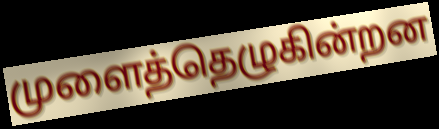
முளைத்தெழுகின்றன